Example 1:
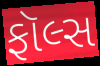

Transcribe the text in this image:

ફૉલ્સ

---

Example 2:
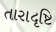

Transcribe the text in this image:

તારાદૃષ્ટિ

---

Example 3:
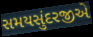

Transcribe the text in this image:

સમયસુંદરજીએ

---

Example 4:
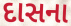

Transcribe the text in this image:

દાસના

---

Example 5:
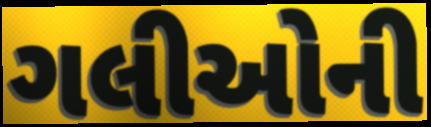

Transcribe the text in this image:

ગલીઓની